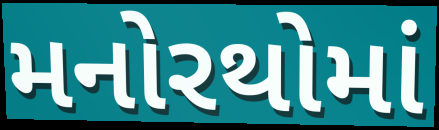
મનોરથોમાં